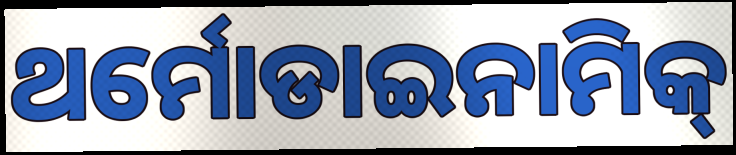
ଥର୍ମୋଡାଇନାମିକ୍